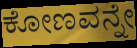
ಕೋಣವನ್ನೇ